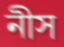
নীস